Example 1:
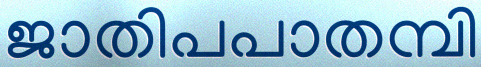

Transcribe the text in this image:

ജാതിപപാതമ്പി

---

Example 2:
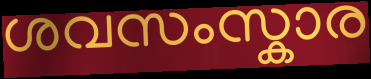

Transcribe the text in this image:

ശവസംസ്കാര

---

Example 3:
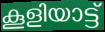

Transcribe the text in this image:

കൂളിയാട്ട്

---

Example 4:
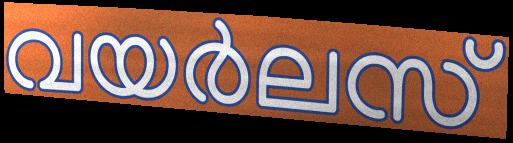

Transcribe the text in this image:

വയർലസ്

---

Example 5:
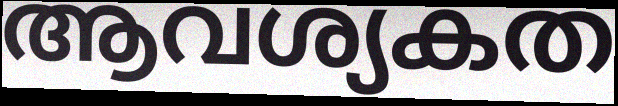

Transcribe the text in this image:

ആവശ്യകത